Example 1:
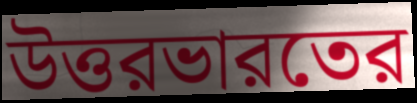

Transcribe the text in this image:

উত্তরভারতের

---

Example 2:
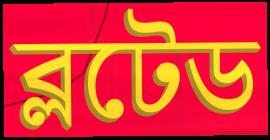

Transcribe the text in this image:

ব্লটেড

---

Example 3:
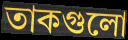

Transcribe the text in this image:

তাকগুলো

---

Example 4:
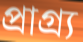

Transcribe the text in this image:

প্রাগ্র্য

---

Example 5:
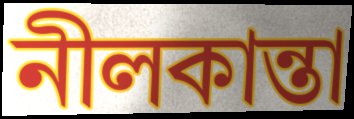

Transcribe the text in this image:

নীলকান্তা